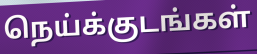
நெய்க்குடங்கள்